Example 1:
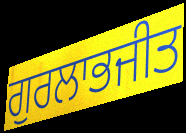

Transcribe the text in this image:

ਗੁਰਲਾਭਜੀਤ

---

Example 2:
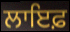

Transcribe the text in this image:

ਲਾਇਫ਼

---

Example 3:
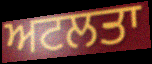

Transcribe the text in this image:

ਅਟਲਤਾ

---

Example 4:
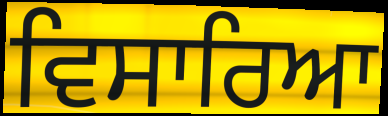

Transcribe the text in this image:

ਵਿਸਾਰਿਆ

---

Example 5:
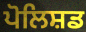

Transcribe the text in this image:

ਪੋਲਿਸ਼ਡ